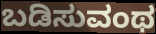
ಬಡಿಸುವಂಥ